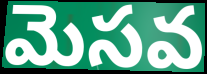
మెసవ